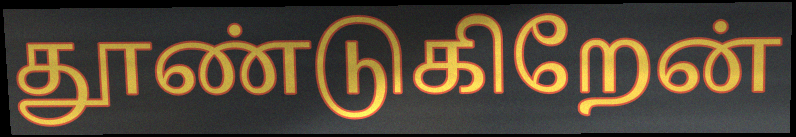
தூண்டுகிறேன்